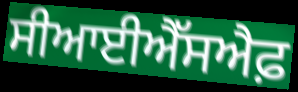
ਸੀਆਈਐੱਸਐਫ਼